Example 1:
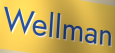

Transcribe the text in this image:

Wellman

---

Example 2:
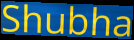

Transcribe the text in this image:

Shubha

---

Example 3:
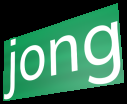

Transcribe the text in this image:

jong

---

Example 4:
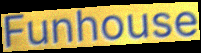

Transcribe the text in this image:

Funhouse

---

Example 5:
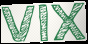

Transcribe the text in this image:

VIX